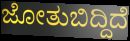
ಜೋತುಬಿದ್ದಿದೆ